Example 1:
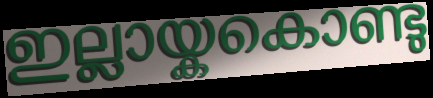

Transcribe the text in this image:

ഇല്ലായ്കകൊണ്ടു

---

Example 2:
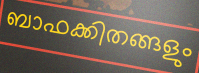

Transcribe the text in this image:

ബാഫക്കിതങ്ങളും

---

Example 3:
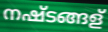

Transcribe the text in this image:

നഷ്ടങ്ങള്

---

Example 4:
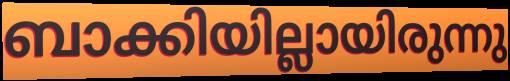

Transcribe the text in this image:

ബാക്കിയില്ലായിരുന്നു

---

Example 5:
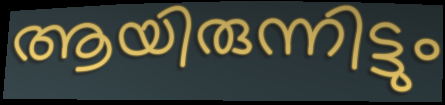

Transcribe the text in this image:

ആയിരുന്നിട്ടും